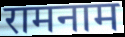
रामनाम